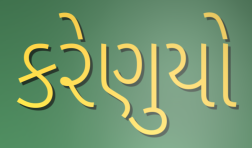
કરેણુયો